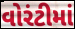
વોરંટીમાં